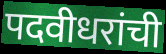
पदवीधरांची